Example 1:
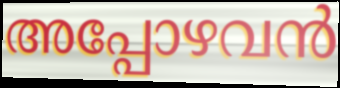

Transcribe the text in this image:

അപ്പോഴവൻ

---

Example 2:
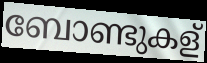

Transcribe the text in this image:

ബോണ്ടുകള്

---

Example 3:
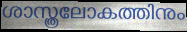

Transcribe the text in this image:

ശാസ്ത്രലോകത്തിനും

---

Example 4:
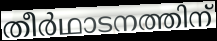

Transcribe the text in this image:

തീർഥാടനത്തിന്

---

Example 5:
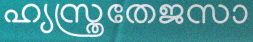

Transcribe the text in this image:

ഹ്യസ്ത്രതേജസാ